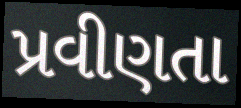
પ્રવીણતા